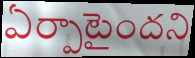
ఏర్పాటైందని